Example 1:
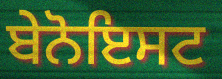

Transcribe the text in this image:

ਬੇਨੋਇਸਟ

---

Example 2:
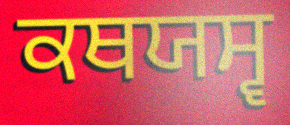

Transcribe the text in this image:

ਕਥਯਸ੍ਵ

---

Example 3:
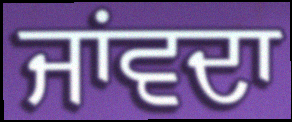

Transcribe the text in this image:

ਜਾਂਵਦਾ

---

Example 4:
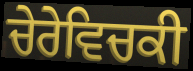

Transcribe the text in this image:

ਚੇਰੇਵਿਚਕੀ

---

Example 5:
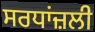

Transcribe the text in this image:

ਸਰਧਾਂਜ਼ਲੀ